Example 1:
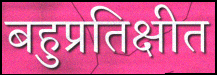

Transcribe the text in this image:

बहुप्रतिक्षीत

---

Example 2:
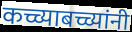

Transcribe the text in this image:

कच्च्याबच्च्यांनी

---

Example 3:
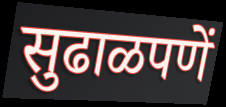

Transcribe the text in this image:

सुढाळपणें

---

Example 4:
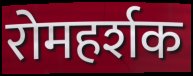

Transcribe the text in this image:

रोमहर्शक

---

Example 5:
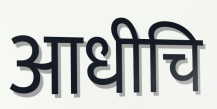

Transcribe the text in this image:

आधीचि